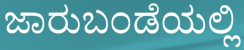
ಜಾರುಬಂಡೆಯಲ್ಲಿ